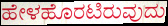
ಹೇಳಹೊರಟಿರುವುದು